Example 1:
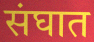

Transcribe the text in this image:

संघात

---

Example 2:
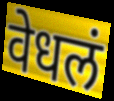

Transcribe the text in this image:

वेधलं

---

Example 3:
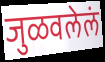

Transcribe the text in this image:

जुळवलेलं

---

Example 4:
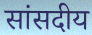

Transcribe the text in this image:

सांसदीय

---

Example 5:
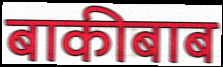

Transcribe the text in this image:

बाकीबाब